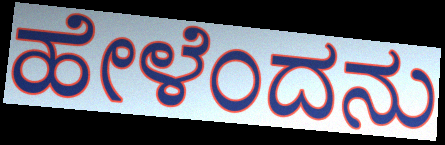
ಹೇಳೆಂದನು